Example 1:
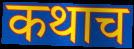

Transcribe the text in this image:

कथाच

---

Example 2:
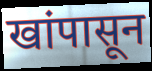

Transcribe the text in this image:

खांपासून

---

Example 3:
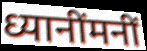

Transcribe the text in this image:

ध्यानींमनीं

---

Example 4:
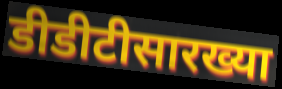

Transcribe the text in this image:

डीडीटीसारख्या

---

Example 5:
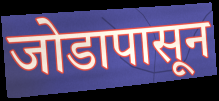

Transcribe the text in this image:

जोडापासून